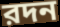
রদন